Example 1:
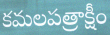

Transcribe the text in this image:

కమలపత్రాక్షీం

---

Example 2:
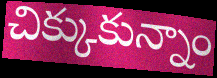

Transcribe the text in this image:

చిక్కుకున్నాం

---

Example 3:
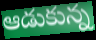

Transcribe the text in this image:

ఆడుకున్న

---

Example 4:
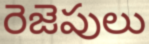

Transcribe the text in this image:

రెజెపులు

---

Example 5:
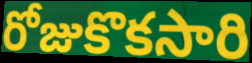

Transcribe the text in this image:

రోజుకొకసారి